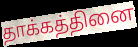
தாக்கத்தினை